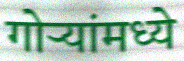
गोऱ्यांमध्ये